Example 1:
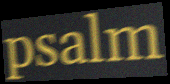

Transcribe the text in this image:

psalm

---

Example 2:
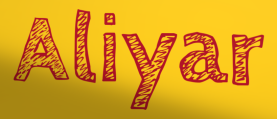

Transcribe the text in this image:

Aliyar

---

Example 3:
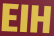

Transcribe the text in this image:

EIH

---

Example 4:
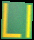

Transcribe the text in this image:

LI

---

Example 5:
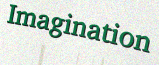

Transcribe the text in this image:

Imagination